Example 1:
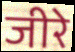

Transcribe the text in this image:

जीरे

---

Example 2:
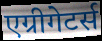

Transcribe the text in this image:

एग्रीगेटर्स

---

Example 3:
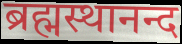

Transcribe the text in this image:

ब्रह्मस्थानन्द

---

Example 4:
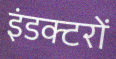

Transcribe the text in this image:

इंडक्टरों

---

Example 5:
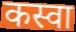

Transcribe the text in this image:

कस्वा